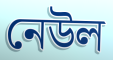
নেউল